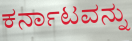
ಕರ್ನಾಟವನ್ನು